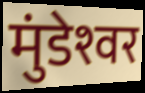
मुंडेश्वर